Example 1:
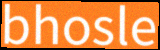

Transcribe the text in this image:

bhosle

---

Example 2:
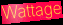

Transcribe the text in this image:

Wattage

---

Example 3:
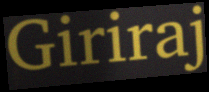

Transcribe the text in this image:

Giriraj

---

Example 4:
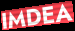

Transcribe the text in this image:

IMDEA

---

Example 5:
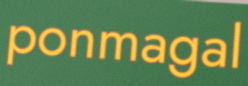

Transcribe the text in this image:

ponmagal